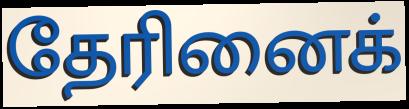
தேரினைக்